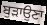
ਬੁੜਾਉਣਾ